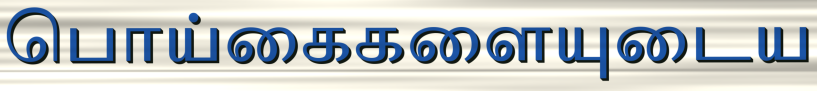
பொய்கைகளையுடைய